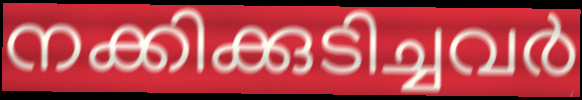
നക്കിക്കുടിച്ചവർ